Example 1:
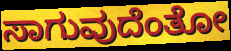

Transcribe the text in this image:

ಸಾಗುವುದೆಂತೋ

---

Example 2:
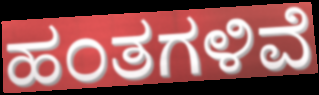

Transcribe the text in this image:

ಹಂತಗಳಿವೆ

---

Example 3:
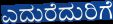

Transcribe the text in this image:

ಎದುರೆದುರಿಗೆ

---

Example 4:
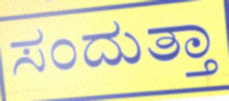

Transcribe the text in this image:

ಸಂದುತ್ತಾ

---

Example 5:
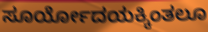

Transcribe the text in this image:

ಸೂರ್ಯೋದಯಕ್ಕಿಂತಲೂ